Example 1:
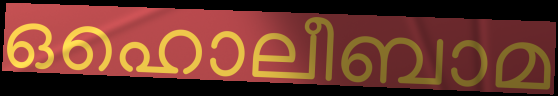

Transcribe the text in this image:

ഒഹൊലീബാമ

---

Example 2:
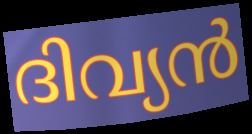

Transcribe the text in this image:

ദിവ്യൻ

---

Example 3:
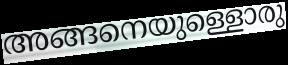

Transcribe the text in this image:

അങ്ങനെയുള്ളൊരു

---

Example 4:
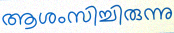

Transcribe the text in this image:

ആശംസിച്ചിരുന്നു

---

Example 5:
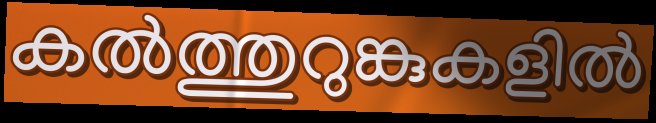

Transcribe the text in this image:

കൽത്തുറുങ്കുകളിൽ